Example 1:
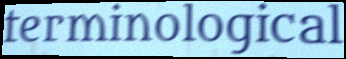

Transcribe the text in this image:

terminological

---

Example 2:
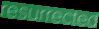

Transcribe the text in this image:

resurrected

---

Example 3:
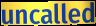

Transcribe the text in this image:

uncalled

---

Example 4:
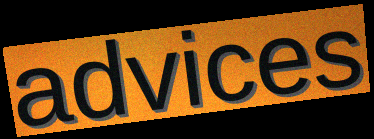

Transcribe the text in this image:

advices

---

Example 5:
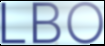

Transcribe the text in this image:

LBO